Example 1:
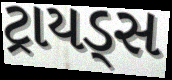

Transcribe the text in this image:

ટ્રાયડ્સ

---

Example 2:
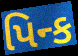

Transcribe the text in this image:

પિન્ક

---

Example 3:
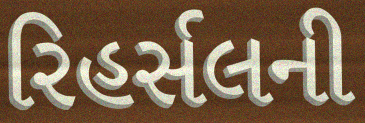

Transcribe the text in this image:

રિહર્સલની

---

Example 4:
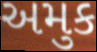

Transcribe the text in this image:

અમુક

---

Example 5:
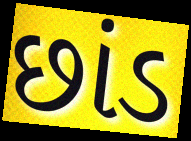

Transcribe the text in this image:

છાંડ